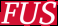
FUS